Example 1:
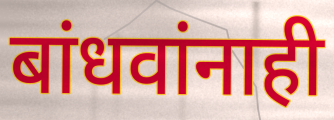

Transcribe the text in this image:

बांधवांनाही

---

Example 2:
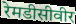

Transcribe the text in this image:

रेमडीसीवीर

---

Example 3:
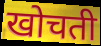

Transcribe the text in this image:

खोचती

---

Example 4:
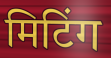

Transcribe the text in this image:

मिटिंग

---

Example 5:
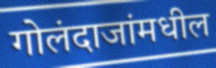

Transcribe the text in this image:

गोलंदाजांमधील